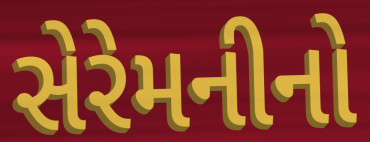
સેરેમનીનો